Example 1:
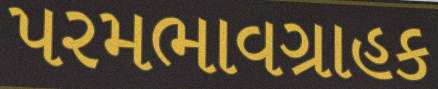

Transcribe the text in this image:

પરમભાવગ્રાહક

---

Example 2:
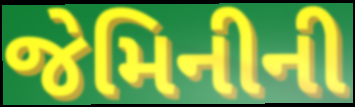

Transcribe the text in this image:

જેમિનીની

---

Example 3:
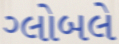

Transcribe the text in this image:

ગ્લોબલે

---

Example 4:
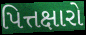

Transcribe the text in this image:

પિત્તક્ષારો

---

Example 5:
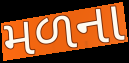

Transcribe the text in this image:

મળના